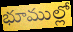
భూముల్లో